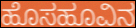
ಹೊಸಹೂವಿನ